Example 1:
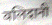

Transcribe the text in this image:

वलिदानी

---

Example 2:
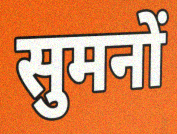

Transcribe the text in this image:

सुमनों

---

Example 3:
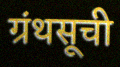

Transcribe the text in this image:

ग्रंथसूची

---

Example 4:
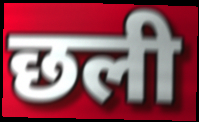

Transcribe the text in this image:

छली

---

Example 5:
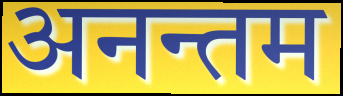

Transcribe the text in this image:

अनन्तम